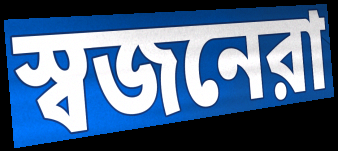
স্বজনেরা